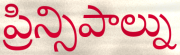
ప్రిన్సిపాల్ను